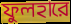
ফুলহারে